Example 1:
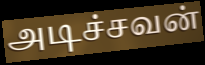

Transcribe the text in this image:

அடிச்சவன்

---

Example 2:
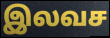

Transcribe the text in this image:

இலவச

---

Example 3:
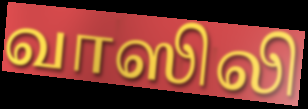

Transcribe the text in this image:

வாஸிலி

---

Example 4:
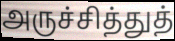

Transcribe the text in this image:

அருச்சித்துத்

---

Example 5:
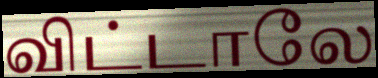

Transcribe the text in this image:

விட்டாலே